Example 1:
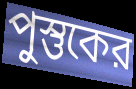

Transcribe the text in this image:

পুস্তুকের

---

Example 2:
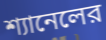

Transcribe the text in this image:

শ্যানেলের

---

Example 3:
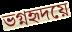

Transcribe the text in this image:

ভগ্নহৃদয়ে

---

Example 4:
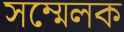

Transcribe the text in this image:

সম্মেলক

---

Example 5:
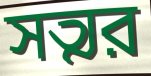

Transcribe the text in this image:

সত্মর